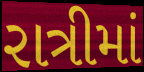
રાત્રીમાં